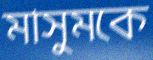
মাসুমকে